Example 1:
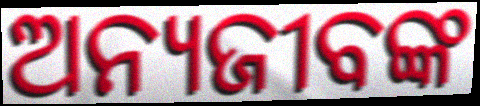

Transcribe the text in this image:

ଅନ୍ୟଜୀବଙ୍କ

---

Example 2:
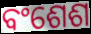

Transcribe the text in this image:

ବଂଶେଶ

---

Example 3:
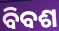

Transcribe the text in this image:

ବିବଶ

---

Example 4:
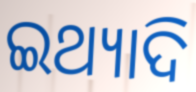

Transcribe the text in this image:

ଇଥ୍ୟାଦି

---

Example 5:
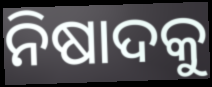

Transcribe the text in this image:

ନିଷାଦକୁ